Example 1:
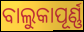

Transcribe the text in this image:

ବାଲୁକାପୂର୍ଣ୍ଣ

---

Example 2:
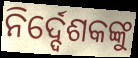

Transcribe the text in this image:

ନିର୍ଦ୍ଦେଶକଙ୍କୁ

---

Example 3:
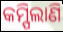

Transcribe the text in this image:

କମ୍ପିଲାଣି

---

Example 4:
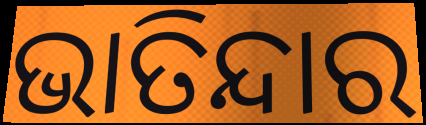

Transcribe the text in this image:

ଭାତିନ୍ଦାର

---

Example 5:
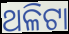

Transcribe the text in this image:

ଥଳିଟା